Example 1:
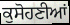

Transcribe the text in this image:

ਕੁਸੋਹਣੀਆਂ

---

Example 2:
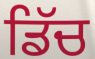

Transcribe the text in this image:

ਡਿੱਚ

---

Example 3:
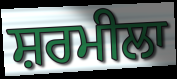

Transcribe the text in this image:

ਸ਼ਰਮੀਲਾ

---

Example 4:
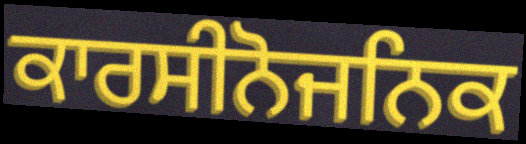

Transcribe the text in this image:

ਕਾਰਸੀਨੋਜਨਿਕ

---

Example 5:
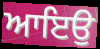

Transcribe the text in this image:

ਆਇਉ